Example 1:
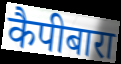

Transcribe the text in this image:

कैपीबारा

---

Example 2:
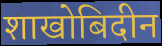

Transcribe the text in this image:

शाखोबिदीन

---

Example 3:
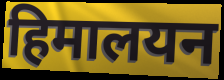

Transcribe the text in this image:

हिमालयन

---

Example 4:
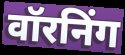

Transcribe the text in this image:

वॉरनिंग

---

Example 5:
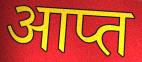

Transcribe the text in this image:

आप्त